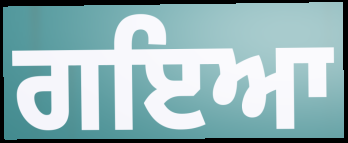
ਗਇਆ